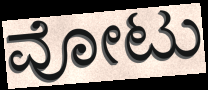
ವೋಟು